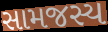
સામજસ્ય